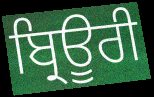
ਬ੍ਰਿਊਰੀ